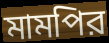
মামপির